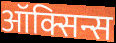
ऑक्सिन्स